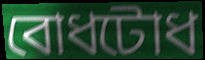
বোধটোধ